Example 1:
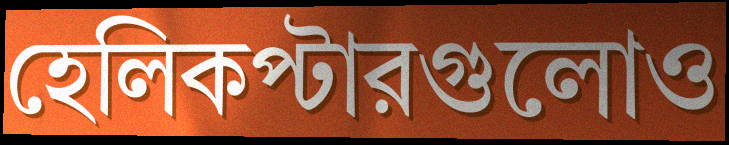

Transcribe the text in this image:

হেলিকপ্টারগুলোও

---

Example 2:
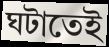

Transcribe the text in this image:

ঘটাতেই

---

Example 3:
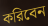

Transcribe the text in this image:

করিবেন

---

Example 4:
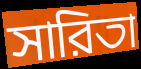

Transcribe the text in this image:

সারিতা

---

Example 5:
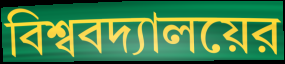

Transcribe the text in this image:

বিশ্ববদ্যালয়ের